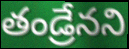
తండ్రేనని